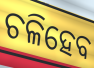
ଚଳିହେବ